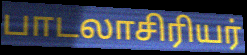
பாடலாசிரியர்